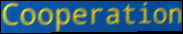
Cooperation